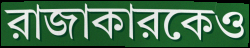
রাজাকারকেও